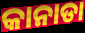
କାନାଡା